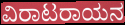
ವಿರಾಟರಾಯನ